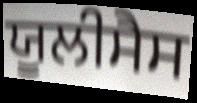
ਯੂਲੀਸੈਸ